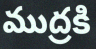
ముద్రకి